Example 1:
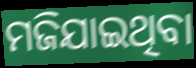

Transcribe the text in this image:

ମଜିଯାଇଥିବା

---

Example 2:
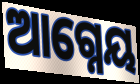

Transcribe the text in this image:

ଆଗ୍ନେୟ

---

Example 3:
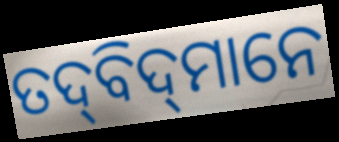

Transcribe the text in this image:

ତଦ୍‌ବିଦ୍‌ମାନେ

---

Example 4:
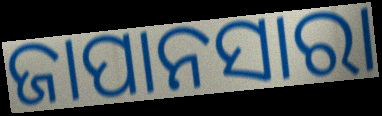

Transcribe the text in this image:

ଜାପାନସାରା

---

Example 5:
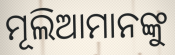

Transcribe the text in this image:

ମୂଲିଆମାନଙ୍କୁ